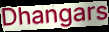
Dhangars